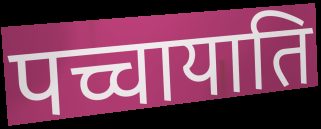
पच्चायाति